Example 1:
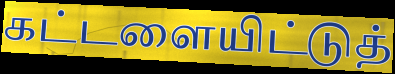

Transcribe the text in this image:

கட்டளையிட்டுத்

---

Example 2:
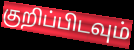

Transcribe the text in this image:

குறிப்பிடவும்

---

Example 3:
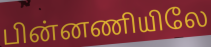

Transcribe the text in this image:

பின்னணியிலே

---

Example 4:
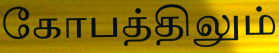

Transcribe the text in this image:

கோபத்திலும்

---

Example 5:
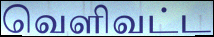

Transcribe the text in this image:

வெளிவட்ட